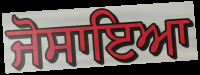
ਜੋਸਾਇਆ